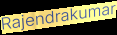
Rajendrakumar